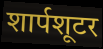
शार्पशूटर